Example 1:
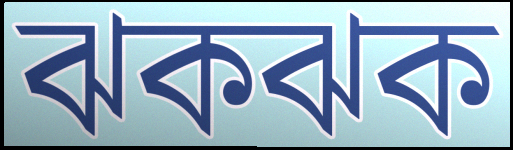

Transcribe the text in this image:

ঝকঝক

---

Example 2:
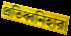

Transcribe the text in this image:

প্রতিধ্বনিহারা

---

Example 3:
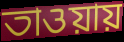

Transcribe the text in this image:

তাওয়ায়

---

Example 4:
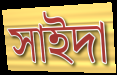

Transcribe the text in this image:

সাইদা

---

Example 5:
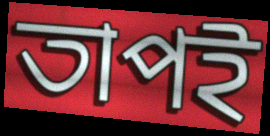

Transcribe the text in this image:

তাপই